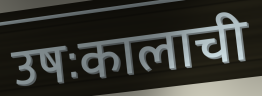
उषःकालाची